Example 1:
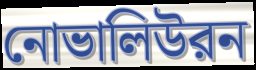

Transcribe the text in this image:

নোভালিউরন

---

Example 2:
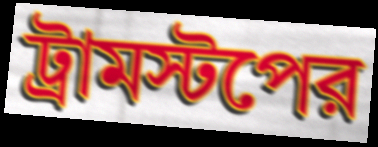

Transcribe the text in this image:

ট্রামস্টপের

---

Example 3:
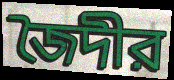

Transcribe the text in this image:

জৈদীর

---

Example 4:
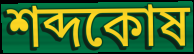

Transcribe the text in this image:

শব্দকোষ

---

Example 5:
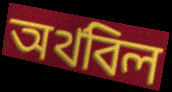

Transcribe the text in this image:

অর্থবিল